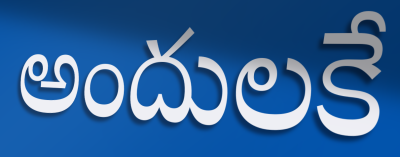
అందులకే